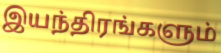
இயந்திரங்களும்